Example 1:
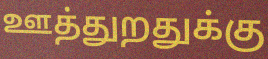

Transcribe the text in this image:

ஊத்துறதுக்கு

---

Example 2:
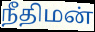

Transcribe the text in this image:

நீதிமன்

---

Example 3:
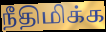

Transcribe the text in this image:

நீதிமிக்க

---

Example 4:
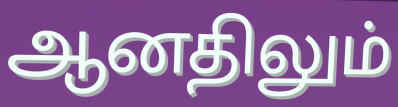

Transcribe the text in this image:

ஆனதிலும்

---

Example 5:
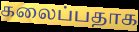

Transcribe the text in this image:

கலைப்பதாக